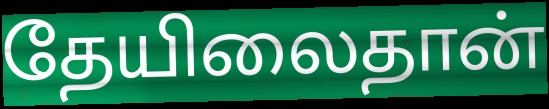
தேயிலைதான்